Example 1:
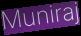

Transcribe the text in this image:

Muniraj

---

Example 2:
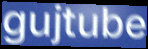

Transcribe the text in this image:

gujtube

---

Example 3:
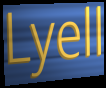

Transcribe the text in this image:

Lyell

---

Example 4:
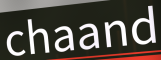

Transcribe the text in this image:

chaand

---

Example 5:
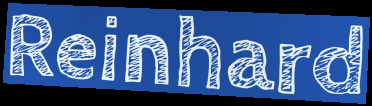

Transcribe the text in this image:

Reinhard